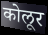
कोलूर